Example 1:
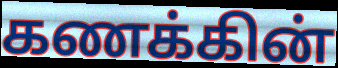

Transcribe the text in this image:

கணக்கின்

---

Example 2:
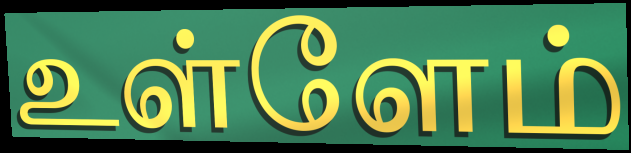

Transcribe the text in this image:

உள்ளேம்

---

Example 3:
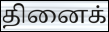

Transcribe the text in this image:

தினைக்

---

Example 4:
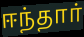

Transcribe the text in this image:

ஈந்தார்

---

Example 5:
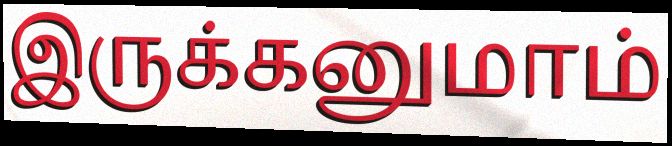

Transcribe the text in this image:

இருக்கனுமாம்